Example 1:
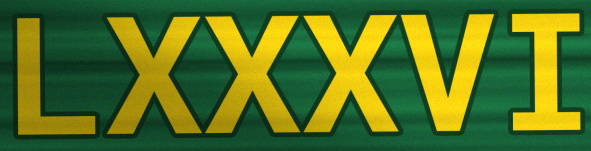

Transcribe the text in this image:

LXXXVI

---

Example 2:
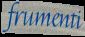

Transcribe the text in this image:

frumenti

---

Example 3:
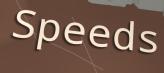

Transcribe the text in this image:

Speeds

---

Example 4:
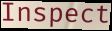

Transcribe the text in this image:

Inspect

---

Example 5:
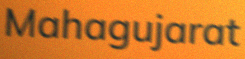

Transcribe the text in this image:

Mahagujarat